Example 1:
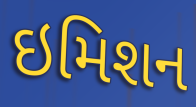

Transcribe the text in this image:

ઇમિશન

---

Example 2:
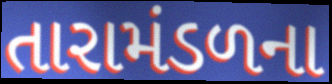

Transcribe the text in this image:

તારામંડળના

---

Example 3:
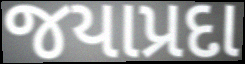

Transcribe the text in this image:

જયાપ્રદા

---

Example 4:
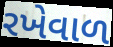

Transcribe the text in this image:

રખેવાળ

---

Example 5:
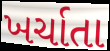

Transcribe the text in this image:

ખર્ચાતા